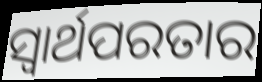
ସ୍ଵାର୍ଥପରତାର